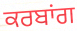
ਕਰਬਾਂਗ